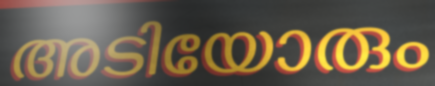
അടിയോരും